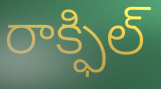
రాక్ఫిల్